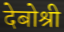
देबोश्री